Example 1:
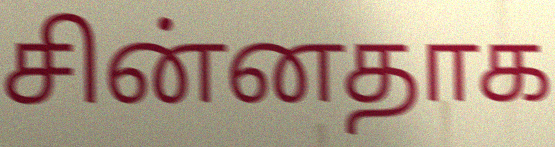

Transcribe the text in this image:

சின்னதாக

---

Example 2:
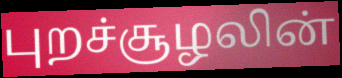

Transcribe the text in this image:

புறச்சூழலின்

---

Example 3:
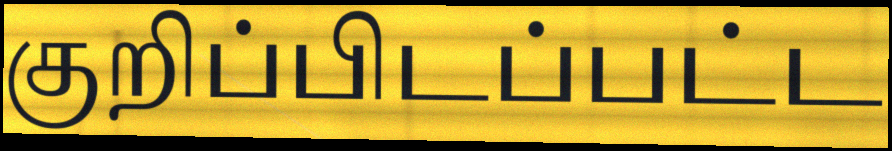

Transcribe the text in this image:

குறிப்பிடப்பட்ட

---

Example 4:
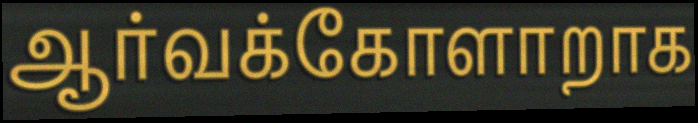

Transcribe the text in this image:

ஆர்வக்கோளாறாக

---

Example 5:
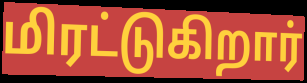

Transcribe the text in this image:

மிரட்டுகிறார்